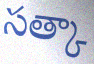
సత్కా